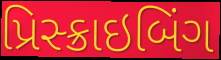
પ્રિસ્ક્રાઇબિંગ